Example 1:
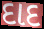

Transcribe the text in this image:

દાદ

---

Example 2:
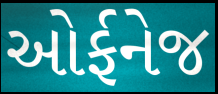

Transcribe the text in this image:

ઓર્ફનેજ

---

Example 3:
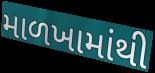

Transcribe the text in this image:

માળખામાંથી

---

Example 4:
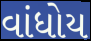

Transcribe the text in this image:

વાંધોય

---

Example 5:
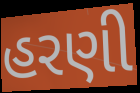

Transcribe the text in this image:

હરણી